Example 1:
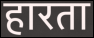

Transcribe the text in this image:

हारता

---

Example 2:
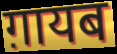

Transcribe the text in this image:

ग़ायब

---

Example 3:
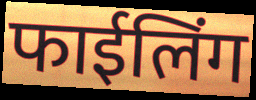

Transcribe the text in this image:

फाईलिंग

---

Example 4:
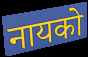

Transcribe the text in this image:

नायको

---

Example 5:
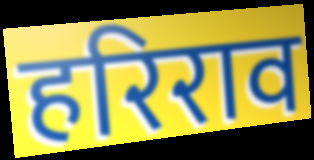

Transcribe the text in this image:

हरिराव